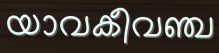
യാവകീവഞ്ച